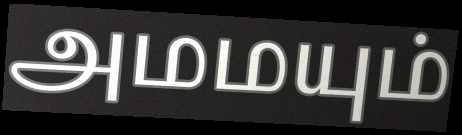
அமமயும்